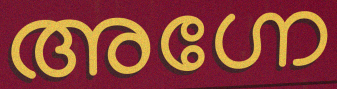
അഗ്നേ